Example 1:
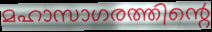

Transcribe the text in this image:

മഹാസാഗരത്തിന്റെ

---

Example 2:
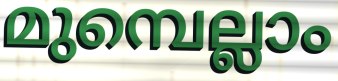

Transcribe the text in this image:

മുമ്പെല്ലാം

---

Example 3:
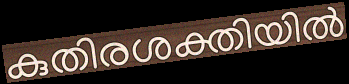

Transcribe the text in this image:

കുതിരശക്തിയിൽ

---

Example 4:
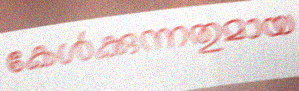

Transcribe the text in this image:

കേൾക്കുന്നതുമായ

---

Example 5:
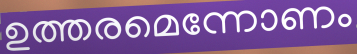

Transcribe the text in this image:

ഉത്തരമെന്നോണം